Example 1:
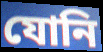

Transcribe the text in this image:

যোনি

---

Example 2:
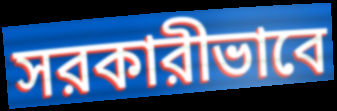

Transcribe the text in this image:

সরকারীভাবে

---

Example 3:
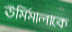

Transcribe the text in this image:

ঊর্মিমালাকে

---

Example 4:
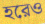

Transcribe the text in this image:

হরেও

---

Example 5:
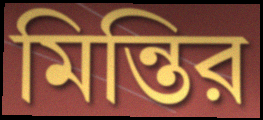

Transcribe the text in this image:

মিন্তির